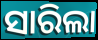
ସାରିଲା